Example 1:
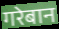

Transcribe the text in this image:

गरेबान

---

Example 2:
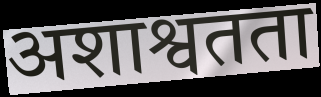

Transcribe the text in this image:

अशाश्वतता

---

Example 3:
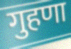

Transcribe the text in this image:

गुहणा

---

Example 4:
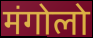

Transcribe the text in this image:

मंगोलो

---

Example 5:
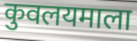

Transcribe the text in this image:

कुवलयमाला